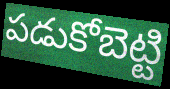
పడుకోబెట్టి